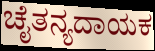
ಚೈತನ್ಯದಾಯಕ